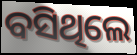
ବସିଥିଲେ